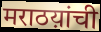
मराठय़ांची